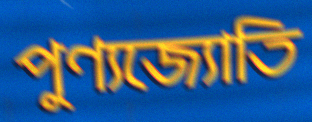
পুণ্যজ্যোতি